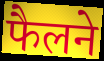
फैलने